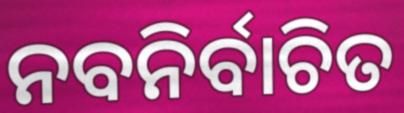
ନବନିର୍ବାଚିତ